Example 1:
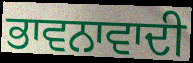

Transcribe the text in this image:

ਭਾਵਨਾਵਾਦੀ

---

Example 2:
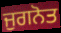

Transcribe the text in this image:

ਜੁਗਨੋਤ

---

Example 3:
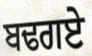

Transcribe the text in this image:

ਬਢਗਏ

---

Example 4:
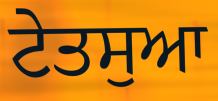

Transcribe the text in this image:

ਟੇਤਸੁਆ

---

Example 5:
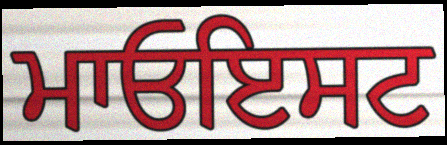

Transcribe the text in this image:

ਮਾਓਇਸਟ